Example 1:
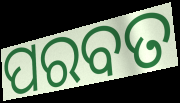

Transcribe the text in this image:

ପରବତ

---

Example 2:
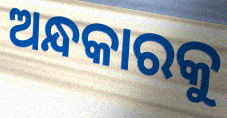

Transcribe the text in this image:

ଅନ୍ଧକାରକୁ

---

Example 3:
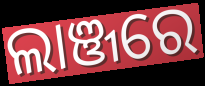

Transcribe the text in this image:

ଲାଞ୍ଜରେ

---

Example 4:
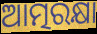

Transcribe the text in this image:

ଆତ୍ମରକ୍ଷା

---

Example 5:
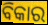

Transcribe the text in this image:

ବିକାର